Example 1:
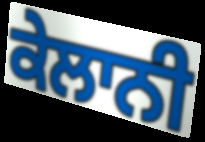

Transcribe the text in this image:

ਕੇਲਾਨੀ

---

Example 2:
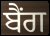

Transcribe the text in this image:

ਬੈਂਗ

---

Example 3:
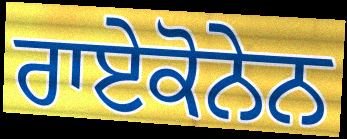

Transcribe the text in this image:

ਰਾਏਕੋਨੇਨ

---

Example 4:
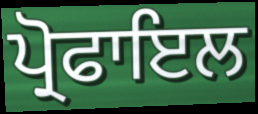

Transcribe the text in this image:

ਪ੍ਰੋਫਾਇਲ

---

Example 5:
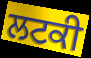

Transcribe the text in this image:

ਲਟਕੀ